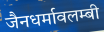
जैनधर्मावलम्बी